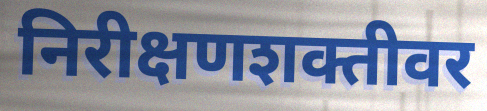
निरीक्षणशक्तीवर